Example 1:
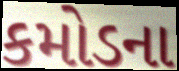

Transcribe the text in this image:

કમોડના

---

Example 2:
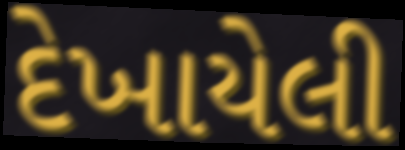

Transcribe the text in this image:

દેખાયેલી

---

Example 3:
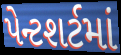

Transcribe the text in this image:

પેન્ટશર્ટમાં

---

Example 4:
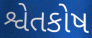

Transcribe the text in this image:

શ્વેતકોષ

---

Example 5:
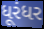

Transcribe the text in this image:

ધૂરંધર